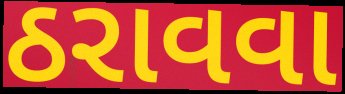
ઠરાવવા